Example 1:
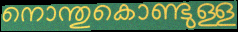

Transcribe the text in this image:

നൊന്തുകൊണ്ടുള്ള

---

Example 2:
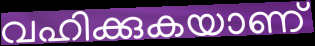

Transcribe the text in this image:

വഹിക്കുകയാണ്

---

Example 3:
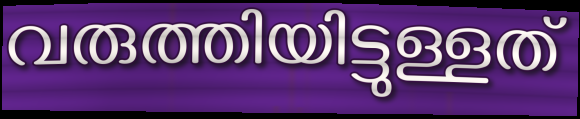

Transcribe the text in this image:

വരുത്തിയിട്ടുള്ളത്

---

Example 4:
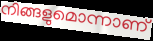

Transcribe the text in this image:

നിങ്ങളുമൊന്നാണ്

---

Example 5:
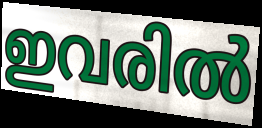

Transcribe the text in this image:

ഇവരിൽ